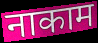
नाकाम